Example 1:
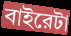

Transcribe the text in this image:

বাইরেটা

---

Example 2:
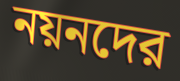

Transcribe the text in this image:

নয়নদের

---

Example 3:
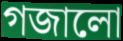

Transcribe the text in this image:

গজালো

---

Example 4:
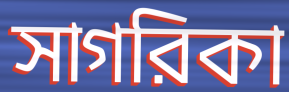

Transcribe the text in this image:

সাগরিকা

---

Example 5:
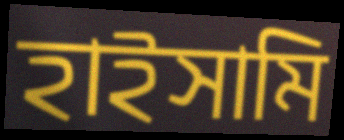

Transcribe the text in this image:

হাইসামি